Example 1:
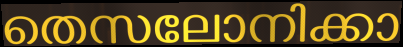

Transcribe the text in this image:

തെസലോനിക്കാ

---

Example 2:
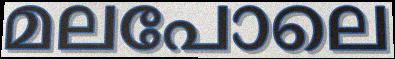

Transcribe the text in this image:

മലപോലെ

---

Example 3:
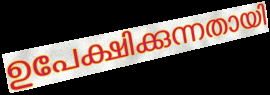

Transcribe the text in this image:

ഉപേക്ഷിക്കുന്നതായി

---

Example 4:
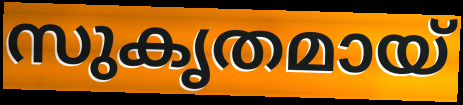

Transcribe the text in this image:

സുകൃതമായ്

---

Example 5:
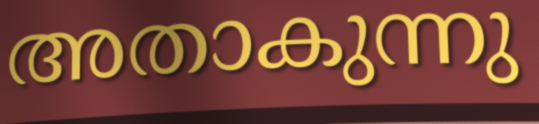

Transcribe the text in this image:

അതാകുന്നു